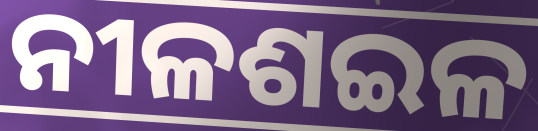
ନୀଳଶଇଳ